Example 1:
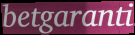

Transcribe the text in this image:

betgaranti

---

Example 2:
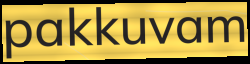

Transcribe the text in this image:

pakkuvam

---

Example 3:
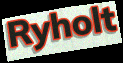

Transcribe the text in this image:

Ryholt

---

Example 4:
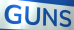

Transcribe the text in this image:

GUNS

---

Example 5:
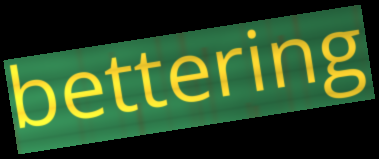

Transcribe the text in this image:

bettering